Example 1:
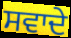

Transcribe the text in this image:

ਸਵਾਦੇ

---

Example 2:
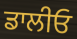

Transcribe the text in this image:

ਡਾਲੀਓ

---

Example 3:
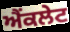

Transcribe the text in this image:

ਐਂਕਲੇਟ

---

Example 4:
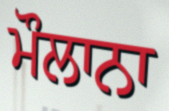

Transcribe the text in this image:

ਮੌਲਾਨਾ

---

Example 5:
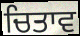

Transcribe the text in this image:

ਚਿਤਾਵ